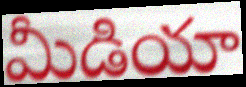
మీడియా